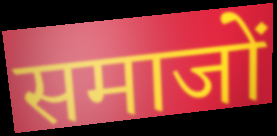
समाजों